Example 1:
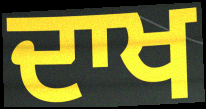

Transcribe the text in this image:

ਦਾਖ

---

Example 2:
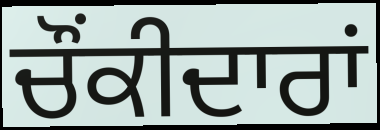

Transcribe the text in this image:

ਚੌਂਕੀਦਾਰਾਂ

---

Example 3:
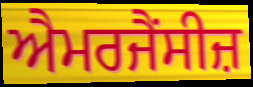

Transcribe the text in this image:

ਐਮਰਜੈਂਸੀਜ਼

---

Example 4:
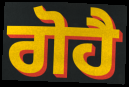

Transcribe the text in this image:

ਗੋਹੈ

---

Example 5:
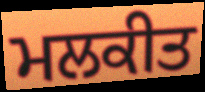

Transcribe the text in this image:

ਮਲਕੀਤ